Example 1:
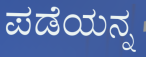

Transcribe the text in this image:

ಪಡೆಯನ್ನ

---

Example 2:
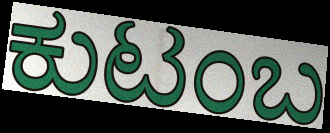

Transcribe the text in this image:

ಕುಟಂಬ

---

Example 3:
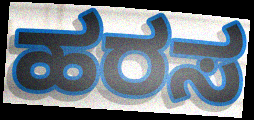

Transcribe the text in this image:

ಹರಸ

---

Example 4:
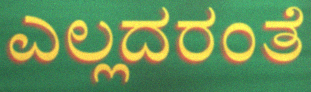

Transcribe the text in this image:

ಎಲ್ಲದರಂತೆ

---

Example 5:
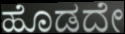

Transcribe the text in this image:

ಹೊಡದೇ